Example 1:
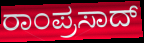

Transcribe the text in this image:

ರಾಂಪ್ರಸಾದ್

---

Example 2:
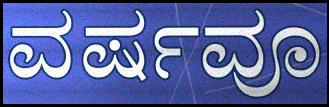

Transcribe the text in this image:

ವರ್ಷವೂ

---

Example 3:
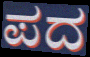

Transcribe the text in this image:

ಪದ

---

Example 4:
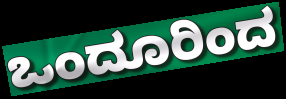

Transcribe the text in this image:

ಒಂದೂರಿಂದ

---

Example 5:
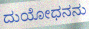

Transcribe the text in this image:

ದುಯೋಧನನು